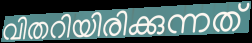
വിതറിയിരിക്കുന്നത്